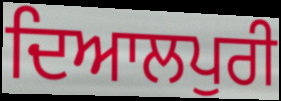
ਦਿਆਲਪੁਰੀ